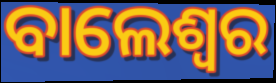
ବାଲେଶ୍ବର